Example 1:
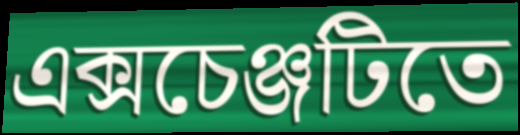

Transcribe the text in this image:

এক্সচেঞ্জটিতে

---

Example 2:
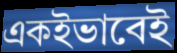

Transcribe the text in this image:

একইভাবেই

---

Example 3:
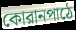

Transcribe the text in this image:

কোরানপাঠে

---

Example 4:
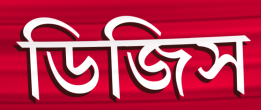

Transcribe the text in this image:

ডিজিস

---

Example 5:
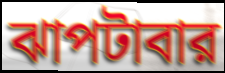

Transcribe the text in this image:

ঝাপটাবার